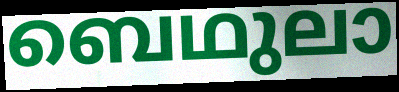
ബെഥുലാ